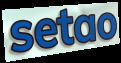
setao